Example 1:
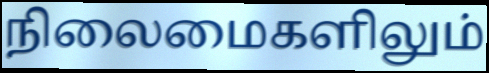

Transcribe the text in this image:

நிலைமைகளிலும்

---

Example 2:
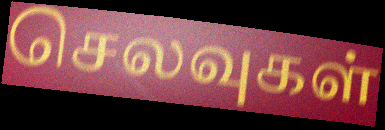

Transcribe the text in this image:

செலவுகள்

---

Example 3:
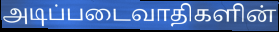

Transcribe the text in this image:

அடிப்படைவாதிகளின்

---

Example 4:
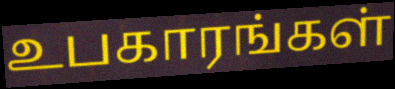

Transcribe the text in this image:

உபகாரங்கள்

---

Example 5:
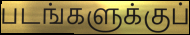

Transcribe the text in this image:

படங்களுக்குப்